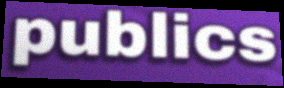
publics